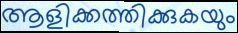
ആളിക്കത്തിക്കുകയും